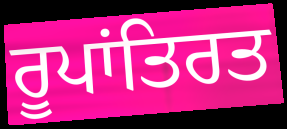
ਰੂਪਾਂਤਿਰਤ